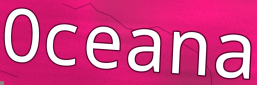
Oceana